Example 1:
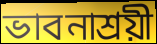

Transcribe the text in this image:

ভাবনাশ্রয়ী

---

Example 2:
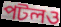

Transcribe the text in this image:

পটলও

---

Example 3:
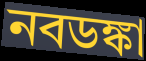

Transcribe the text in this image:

নবডঙ্কা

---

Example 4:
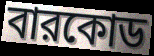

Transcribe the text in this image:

বারকোড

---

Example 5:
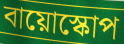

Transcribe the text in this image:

বায়োস্কোপ